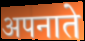
अपनाते